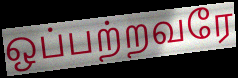
ஒப்பற்றவரே